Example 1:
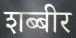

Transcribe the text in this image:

शब्बीर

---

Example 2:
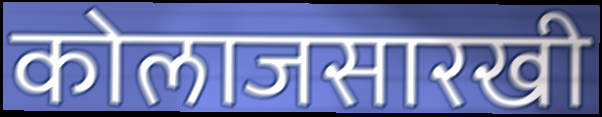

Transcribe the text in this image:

कोलाजसारखी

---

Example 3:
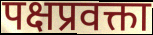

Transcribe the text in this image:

पक्षप्रवक्ता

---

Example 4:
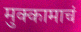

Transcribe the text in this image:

मुक्कामाचं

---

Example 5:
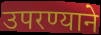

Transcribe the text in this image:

उपरण्याने